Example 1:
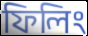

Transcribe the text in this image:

ফিলিং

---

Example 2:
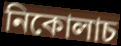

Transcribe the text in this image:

নিকোলাচ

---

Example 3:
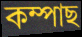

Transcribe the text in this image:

কম্পাছ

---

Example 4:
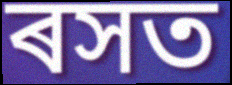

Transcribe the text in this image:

ৰসত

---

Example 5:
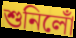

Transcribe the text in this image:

শুনিলোঁ